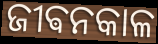
ଜୀଵନକାଳ